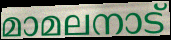
മാമലനാട്